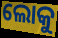
ଲୋକୁ